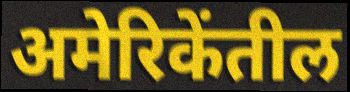
अमेरिकेंतील